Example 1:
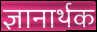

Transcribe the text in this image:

ज्ञानार्थक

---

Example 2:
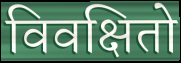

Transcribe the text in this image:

विवक्षितो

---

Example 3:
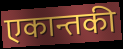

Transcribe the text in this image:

एकान्तकी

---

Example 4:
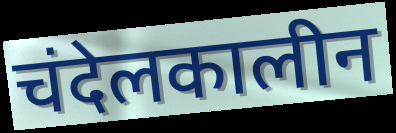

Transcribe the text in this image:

चंदेलकालीन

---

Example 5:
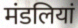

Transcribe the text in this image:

मंडलियां